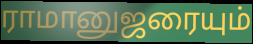
ராமானுஜரையும்